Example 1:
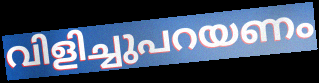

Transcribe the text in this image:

വിളിച്ചുപറയണം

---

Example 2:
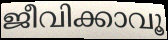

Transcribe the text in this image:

ജീവിക്കാവൂ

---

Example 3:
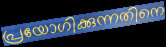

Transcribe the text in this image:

പ്രയോഗിക്കുന്നതിനെ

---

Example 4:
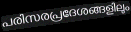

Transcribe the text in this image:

പരിസരപ്രദേശങ്ങളിലും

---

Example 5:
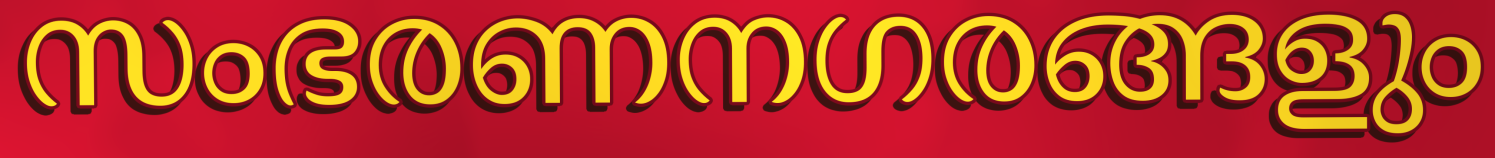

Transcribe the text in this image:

സംഭരണനഗരങ്ങളും